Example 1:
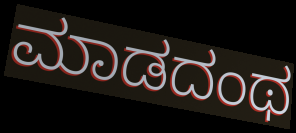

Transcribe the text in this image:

ಮಾಡದಂಥ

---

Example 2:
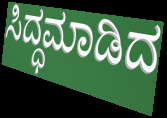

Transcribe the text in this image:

ಸಿದ್ಧಮಾಡಿದ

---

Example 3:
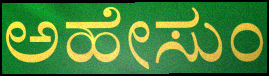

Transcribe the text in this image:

ಅಹೇಸುಂ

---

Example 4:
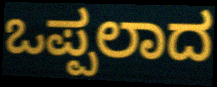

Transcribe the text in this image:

ಒಪ್ಪಲಾದ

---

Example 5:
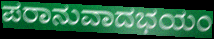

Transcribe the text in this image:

ಪರಾನುವಾದಭಯಂ